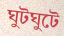
ঘুটঘুটে